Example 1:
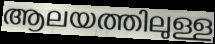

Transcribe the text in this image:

ആലയത്തിലുള്ള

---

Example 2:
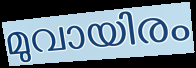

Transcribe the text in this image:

മുവായിരം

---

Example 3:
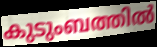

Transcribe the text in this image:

കുടുംബത്തിൽ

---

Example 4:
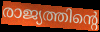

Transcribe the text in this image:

രാജ്യത്തിന്റെ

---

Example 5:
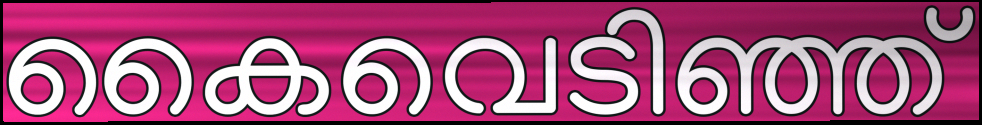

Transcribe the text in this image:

കൈവെടിഞ്ഞ്